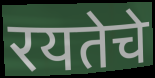
रयतेचे